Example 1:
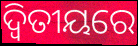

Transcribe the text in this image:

ଦ୍ୱିତୀୟରେ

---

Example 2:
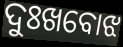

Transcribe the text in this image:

ଦୁଃଖବୋଝ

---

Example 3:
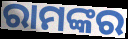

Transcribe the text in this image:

ରାମଙ୍କର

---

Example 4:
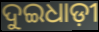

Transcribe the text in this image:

ଦୁଇଧାଡ଼ୀ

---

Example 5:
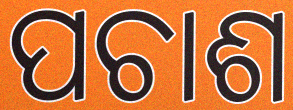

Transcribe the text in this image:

ପଚାଶ